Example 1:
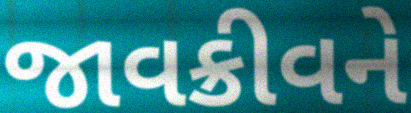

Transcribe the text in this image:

જાવક્રીવને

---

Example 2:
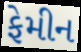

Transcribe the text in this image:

ફેમીન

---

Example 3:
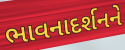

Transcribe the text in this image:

ભાવનાદર્શનને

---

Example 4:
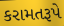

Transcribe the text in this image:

કરામતરૂપે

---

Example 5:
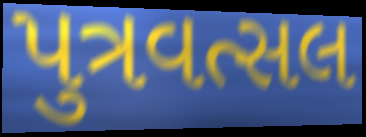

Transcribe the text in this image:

પુત્રવત્સલ